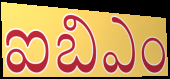
ఐబిఎం